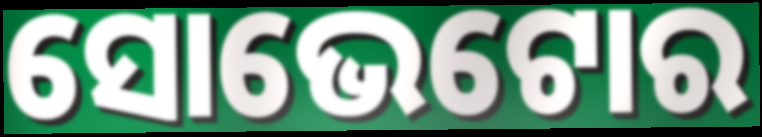
ସୋଭେଟୋର